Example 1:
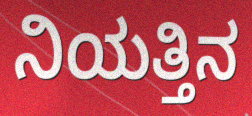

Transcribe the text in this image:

ನಿಯತ್ತಿನ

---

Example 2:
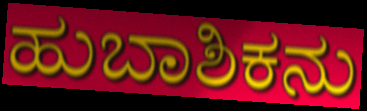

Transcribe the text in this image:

ಹುಬಾಶಿಕನು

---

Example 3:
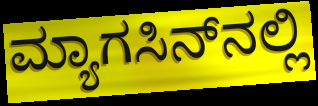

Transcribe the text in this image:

ಮ್ಯಾಗಸಿನ್‍ನಲ್ಲಿ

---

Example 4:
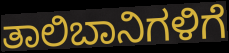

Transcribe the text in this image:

ತಾಲಿಬಾನಿಗಳಿಗೆ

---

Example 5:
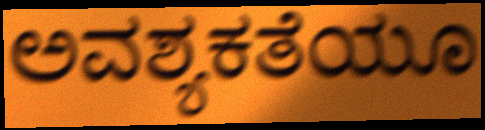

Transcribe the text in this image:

ಅವಶ್ಯಕತೆಯೂ